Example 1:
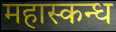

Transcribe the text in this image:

महास्कन्ध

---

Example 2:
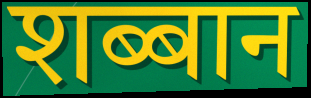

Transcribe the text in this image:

शब्बान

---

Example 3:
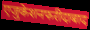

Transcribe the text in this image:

एजुकेशनफरीदाबाद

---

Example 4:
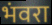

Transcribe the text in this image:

भंवरा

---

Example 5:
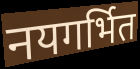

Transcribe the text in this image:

नयगर्भित